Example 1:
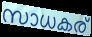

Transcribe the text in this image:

സാധകര്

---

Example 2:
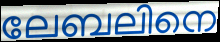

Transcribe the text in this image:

ലേബലിനെ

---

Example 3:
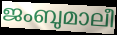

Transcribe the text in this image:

ജംബുമാലീ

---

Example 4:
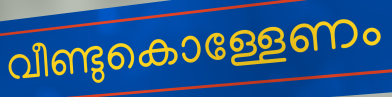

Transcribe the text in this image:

വീണ്ടുകൊള്ളേണം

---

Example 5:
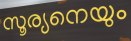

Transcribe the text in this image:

സൂര്യനെയും